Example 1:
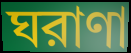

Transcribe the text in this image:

ঘরাণা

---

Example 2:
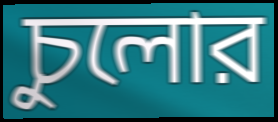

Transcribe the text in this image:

চুলোর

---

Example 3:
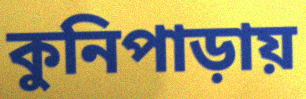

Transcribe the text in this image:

কুনিপাড়ায়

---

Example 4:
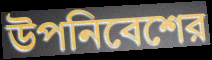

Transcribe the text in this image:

উপনিবেশের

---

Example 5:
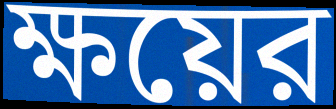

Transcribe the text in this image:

ক্ষয়ের